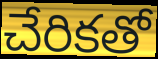
చేరికతో